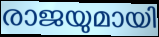
രാജയുമായി